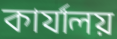
কার্যালয়